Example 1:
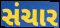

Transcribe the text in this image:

સંચાર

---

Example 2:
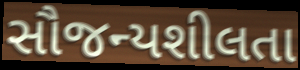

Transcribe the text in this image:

સૌજન્યશીલતા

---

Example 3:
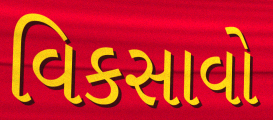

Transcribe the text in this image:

વિકસાવો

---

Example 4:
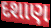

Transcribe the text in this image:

દશાણ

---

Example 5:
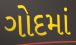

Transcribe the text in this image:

ગોદમાં